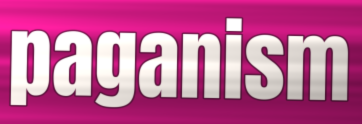
paganism